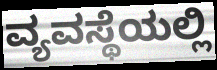
ವ್ಯವಸ್ಥೆಯಲ್ಲಿ